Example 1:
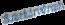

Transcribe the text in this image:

ತೋಟಗಳಿಗಾಗಿ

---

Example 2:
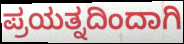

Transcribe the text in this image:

ಪ್ರಯತ್ನದಿಂದಾಗಿ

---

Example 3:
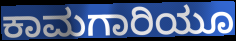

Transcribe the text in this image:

ಕಾಮಗಾರಿಯೂ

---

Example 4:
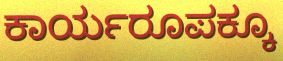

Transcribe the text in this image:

ಕಾರ್ಯರೂಪಕ್ಕೂ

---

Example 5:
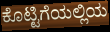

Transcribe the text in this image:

ಕೊಟ್ಟಿಗೆಯಲ್ಲಿಯ